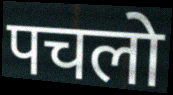
पचलो